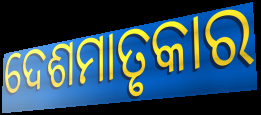
ଦେଶମାତୃକାର